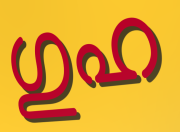
ഗുഹ